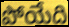
పోయేది